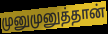
முனுமுனுத்தான்